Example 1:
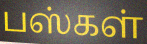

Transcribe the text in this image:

பஸ்கள்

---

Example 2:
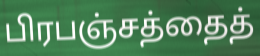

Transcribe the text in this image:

பிரபஞ்சத்தைத்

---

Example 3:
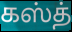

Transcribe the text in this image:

கஸ்த்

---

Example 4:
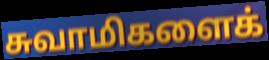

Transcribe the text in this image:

சுவாமிகளைக்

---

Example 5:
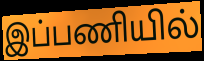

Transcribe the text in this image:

இப்பணியில்